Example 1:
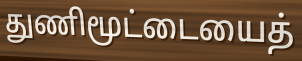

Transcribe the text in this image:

துணிமூட்டையைத்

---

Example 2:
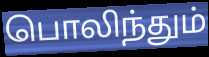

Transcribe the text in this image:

பொலிந்தும்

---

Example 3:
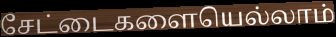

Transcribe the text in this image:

சேட்டைகளையெல்லாம்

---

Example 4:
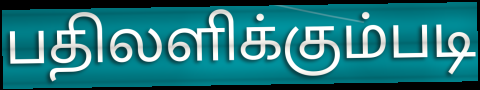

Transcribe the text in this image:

பதிலளிக்கும்படி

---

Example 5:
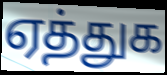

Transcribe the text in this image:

ஏத்துக